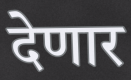
देणार